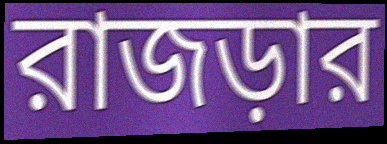
রাজড়ার